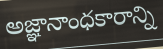
అజ్ఞానాంధకారాన్ని